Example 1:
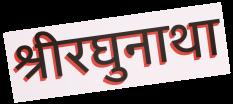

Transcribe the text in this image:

श्रीरघुनाथा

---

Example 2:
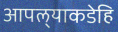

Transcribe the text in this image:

आपल्याकडेहि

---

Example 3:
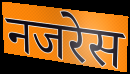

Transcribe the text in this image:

नजरेस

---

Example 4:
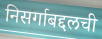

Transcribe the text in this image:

निसर्गाबद्दलची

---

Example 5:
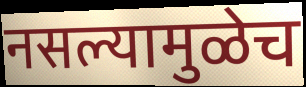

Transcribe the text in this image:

नसल्यामुळेच